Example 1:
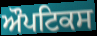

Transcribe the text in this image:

ਔਪਟਿਕਸ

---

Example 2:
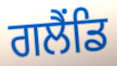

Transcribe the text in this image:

ਗਲੈਂਡਿ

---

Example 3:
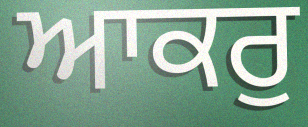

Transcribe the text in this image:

ਆਕਰੁ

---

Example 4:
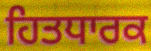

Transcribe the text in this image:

ਹਿਤਧਾਰਕ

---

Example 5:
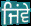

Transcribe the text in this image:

ਜਿਂਵੇ